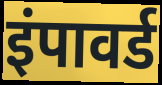
इंपावर्ड